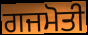
ਗਜਮੋਤੀ